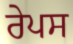
ਰੇਪਸ